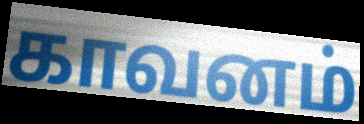
காவனம்